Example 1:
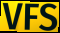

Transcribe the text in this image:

VFS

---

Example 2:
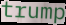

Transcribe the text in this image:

trump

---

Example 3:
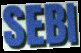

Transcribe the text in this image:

SEBI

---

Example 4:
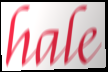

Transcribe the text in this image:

hale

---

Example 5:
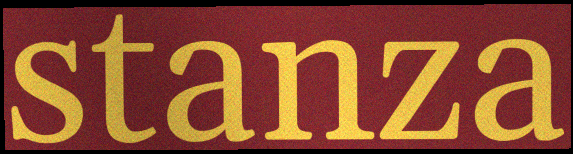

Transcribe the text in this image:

stanza